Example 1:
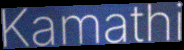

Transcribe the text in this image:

Kamathi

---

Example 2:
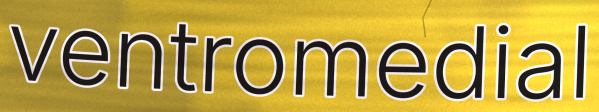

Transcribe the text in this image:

ventromedial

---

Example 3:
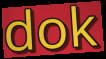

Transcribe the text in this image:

dok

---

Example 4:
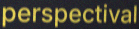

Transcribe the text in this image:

perspectival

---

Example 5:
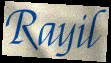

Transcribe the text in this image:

Rayil